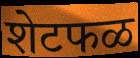
शेटफळ